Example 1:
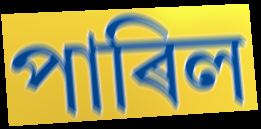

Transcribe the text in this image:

পাৰিল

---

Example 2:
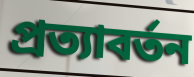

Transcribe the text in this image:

প্ৰত্যাবৰ্তন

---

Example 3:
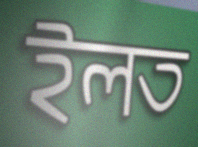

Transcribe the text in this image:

ইলত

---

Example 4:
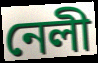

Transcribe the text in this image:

নেলী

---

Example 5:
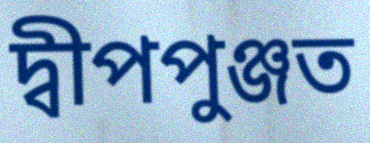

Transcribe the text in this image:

দ্বীপপুঞ্জত